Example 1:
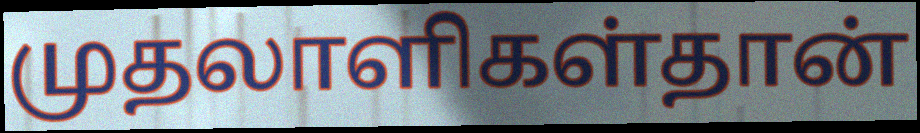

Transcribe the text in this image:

முதலாளிகள்தான்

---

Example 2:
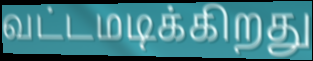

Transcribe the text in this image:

வட்டமடிக்கிறது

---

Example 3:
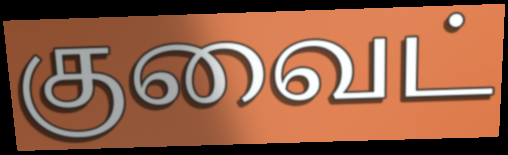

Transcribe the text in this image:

குவைட்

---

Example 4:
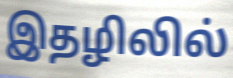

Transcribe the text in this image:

இதழிலில்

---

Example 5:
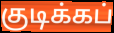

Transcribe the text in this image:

குடிக்கப்